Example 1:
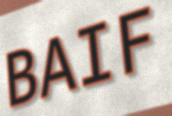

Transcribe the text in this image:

BAIF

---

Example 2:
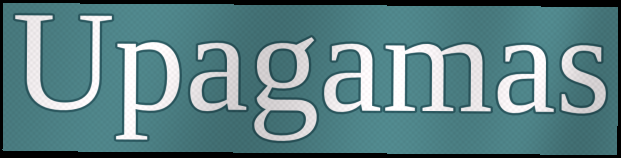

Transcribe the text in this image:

Upagamas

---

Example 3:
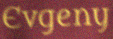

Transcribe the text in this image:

Evgeny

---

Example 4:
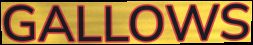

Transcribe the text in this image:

GALLOWS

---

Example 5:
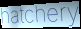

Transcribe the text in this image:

hatchery